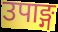
उपाङ्ग